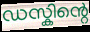
ഡസ്കിന്റെ